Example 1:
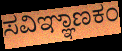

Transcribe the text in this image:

ಸವಿಞ್ಞಾಣಕಂ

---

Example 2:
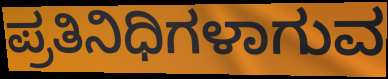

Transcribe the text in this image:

ಪ್ರತಿನಿಧಿಗಳಾಗುವ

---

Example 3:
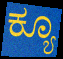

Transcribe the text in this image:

ಕ್ಯೂ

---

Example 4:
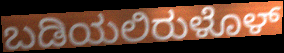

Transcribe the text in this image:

ಬಡಿಯಲಿರುಳೊಳ್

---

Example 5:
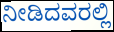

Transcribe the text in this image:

ನೀಡಿದವರಲ್ಲಿ